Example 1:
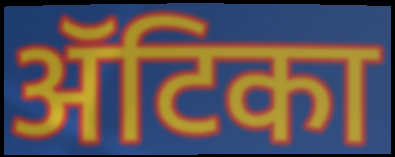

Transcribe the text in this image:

ॲटिका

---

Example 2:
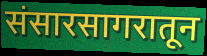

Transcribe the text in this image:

संसारसागरातून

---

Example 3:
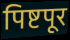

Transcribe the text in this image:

पिष्टपूर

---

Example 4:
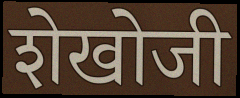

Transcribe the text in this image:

शेखोजी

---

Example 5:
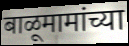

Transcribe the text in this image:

बाळूमामांच्या